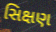
સિક્ષણ